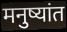
मनुष्यांत